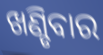
ଖଣ୍ଡିବାର